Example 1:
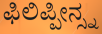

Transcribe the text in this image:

ಫಿಲಿಪ್ಪೀನ್ಸ್ನ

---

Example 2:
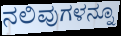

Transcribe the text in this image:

ನಲಿವುಗಳನ್ನೂ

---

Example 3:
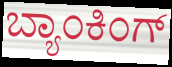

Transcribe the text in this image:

ಬ್ಯಾಂಕಿಂಗ್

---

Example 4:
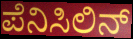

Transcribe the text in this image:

ಪೆನಿಸಿಲಿನ್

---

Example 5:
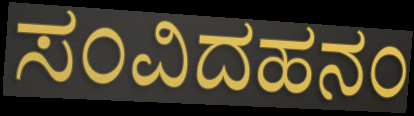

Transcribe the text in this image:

ಸಂವಿದಹನಂ